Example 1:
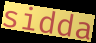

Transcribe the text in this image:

sidda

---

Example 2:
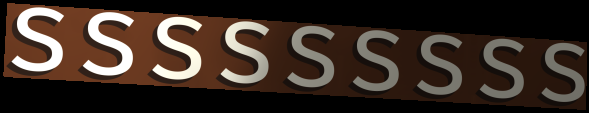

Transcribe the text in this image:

sssssssss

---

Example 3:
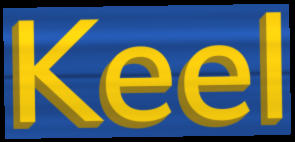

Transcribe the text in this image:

Keel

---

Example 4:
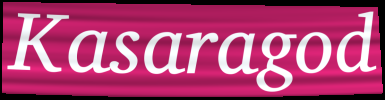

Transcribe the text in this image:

Kasaragod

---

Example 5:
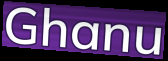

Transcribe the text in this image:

Ghanu